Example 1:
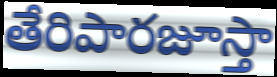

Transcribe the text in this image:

తేరిపారజూస్తా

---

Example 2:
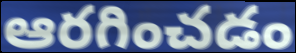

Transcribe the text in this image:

ఆరగించడం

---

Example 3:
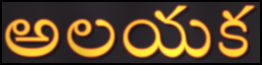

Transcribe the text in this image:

అలయక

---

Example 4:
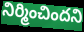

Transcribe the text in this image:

నిర్మించిందని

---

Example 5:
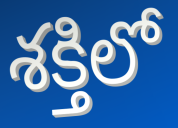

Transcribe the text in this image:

శక్తిలో